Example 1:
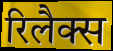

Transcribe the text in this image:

रिलैक्स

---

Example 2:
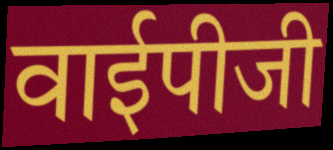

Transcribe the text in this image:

वाईपीजी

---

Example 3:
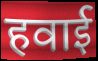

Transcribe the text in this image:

हवाई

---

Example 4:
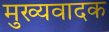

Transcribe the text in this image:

मुख्यवादक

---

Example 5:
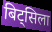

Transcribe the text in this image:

बिट्सिला